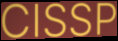
CISSP